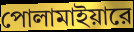
পোলামাইয়ারে